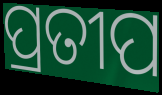
ପ୍ରତୀପ